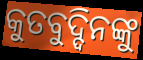
କୁତବୁଦ୍ଦିନଙ୍କୁ